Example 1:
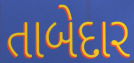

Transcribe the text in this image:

તાબેદાર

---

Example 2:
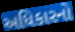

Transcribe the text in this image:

અધિકારનો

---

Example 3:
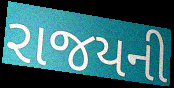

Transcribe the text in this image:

રાજયની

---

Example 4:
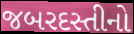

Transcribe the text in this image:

જબરદસ્તીનો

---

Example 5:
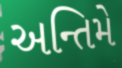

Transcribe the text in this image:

અન્તિમે